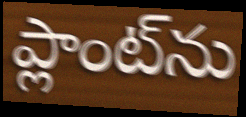
ప్లాంట్‌ను